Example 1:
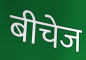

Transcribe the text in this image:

बीचेज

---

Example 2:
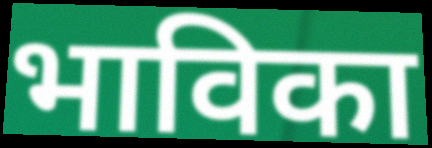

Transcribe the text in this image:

भाविका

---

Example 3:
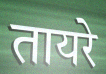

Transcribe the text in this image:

तायरे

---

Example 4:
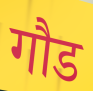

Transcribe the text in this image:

गौड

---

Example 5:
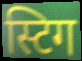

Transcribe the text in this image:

स्टिग